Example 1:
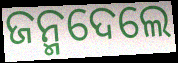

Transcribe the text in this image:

ଜନ୍ମଦେଲେ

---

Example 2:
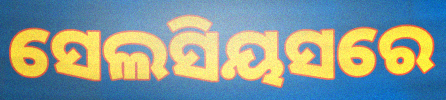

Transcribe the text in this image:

ସେଲସିୟସରେ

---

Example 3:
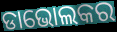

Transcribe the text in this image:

ଡାଭୋଲକର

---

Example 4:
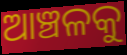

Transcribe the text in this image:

ଆଞ୍ଚଳକୁ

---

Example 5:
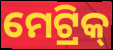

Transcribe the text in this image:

ମେଟ୍ରିକ୍